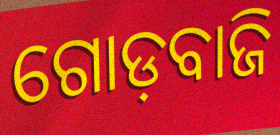
ଗୋଡ଼ବାଜି